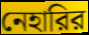
নেহারির